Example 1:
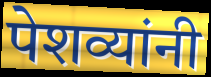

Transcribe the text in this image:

पेशव्यांनी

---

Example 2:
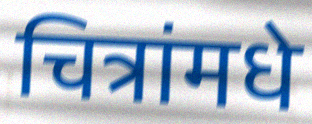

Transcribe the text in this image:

चित्रांमधे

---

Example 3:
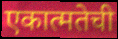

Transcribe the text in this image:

एकात्मतेची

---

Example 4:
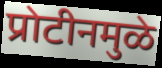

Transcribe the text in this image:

प्रोटीनमुळे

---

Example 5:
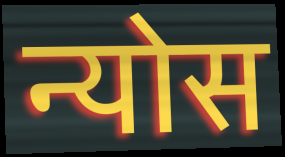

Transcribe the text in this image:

न्योस